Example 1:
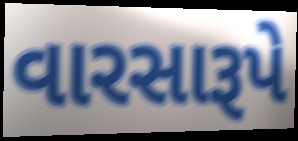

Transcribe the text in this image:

વારસારૂપે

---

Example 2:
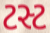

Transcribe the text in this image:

ટસ્ટ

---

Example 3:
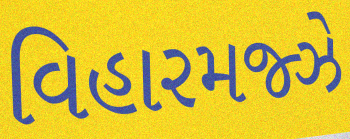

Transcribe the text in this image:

વિહારમજ્ઝે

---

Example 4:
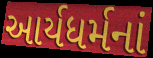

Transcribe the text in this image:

આર્યધર્મનાં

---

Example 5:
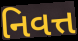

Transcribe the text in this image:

નિવત્ત